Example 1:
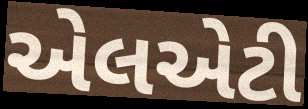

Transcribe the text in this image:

એલએટી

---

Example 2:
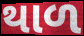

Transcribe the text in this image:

થાળ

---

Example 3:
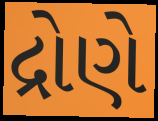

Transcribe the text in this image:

દ્રોણે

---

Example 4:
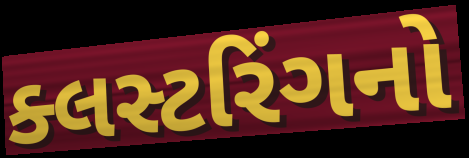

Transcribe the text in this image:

ક્લસ્ટરિંગનો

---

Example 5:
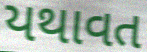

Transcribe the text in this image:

યથાવત